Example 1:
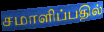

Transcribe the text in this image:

சமாளிப்பதில்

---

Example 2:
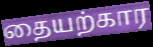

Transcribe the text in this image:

தையற்கார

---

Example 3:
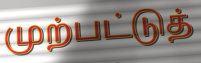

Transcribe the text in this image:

முற்பட்டுத்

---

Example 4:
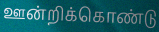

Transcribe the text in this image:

ஊன்றிக்கொண்டு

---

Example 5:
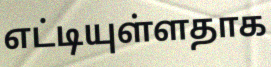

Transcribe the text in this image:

எட்டியுள்ளதாக